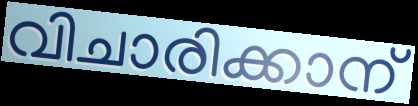
വിചാരിക്കാന്